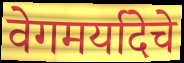
वेगमर्यादेचे